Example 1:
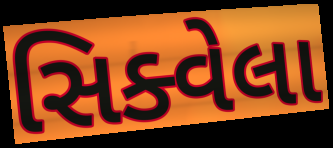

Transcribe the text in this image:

સિક્વેલા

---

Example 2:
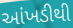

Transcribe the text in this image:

આંખડીથી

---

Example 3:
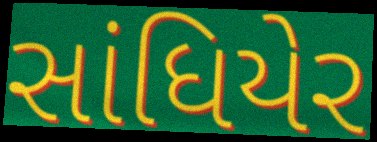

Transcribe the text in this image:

સાંધિયેર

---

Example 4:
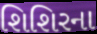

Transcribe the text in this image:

શિશિરના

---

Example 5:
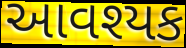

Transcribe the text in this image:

આવશ્યક